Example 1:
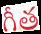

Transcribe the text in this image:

గీత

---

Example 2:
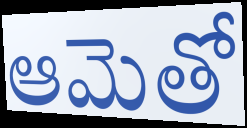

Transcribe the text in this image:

ఆమెతో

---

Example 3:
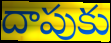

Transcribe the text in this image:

దాపుకు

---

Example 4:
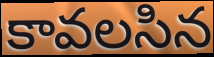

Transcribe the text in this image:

కావలసిన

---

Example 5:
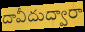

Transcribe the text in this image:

దావీదుద్వారా